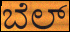
ಬೆಲ್